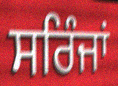
ਸਰਿੰਜਾਂ